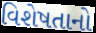
વિશેષતાનો